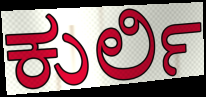
ಕುರ್ಲಿ